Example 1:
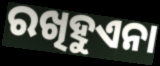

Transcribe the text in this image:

ରଖିହୁଏନା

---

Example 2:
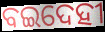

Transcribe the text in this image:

ବଇଦେହୀ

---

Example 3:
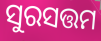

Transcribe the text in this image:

ସୁରସତ୍ତମ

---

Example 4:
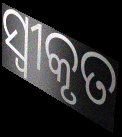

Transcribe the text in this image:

ସ୍ଵୀକୃତ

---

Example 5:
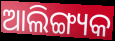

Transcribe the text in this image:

ଆଲିଙ୍ଗ୍ୟକ